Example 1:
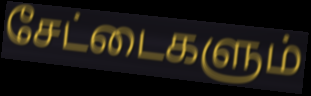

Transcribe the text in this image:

சேட்டைகளும்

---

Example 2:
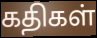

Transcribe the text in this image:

கதிகள்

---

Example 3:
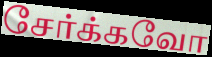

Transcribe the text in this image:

சேர்க்கவோ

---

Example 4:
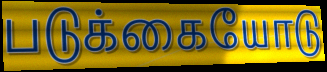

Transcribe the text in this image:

படுக்கையோடு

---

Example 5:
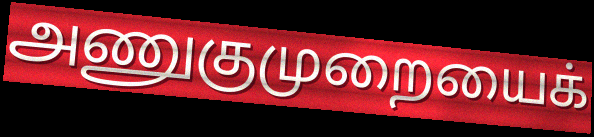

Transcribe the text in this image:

அணுகுமுறையைக்